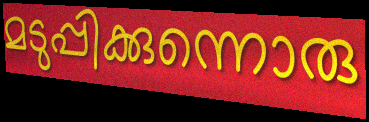
മടുപ്പിക്കുന്നൊരു